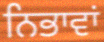
ਨਿਭਾਵਾਂ